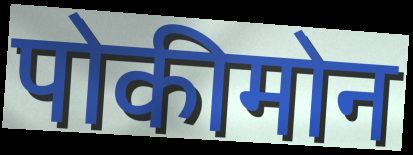
पोकीमोन